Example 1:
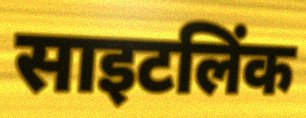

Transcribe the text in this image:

साइटलिंक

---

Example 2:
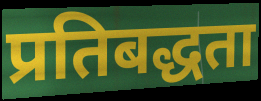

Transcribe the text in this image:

प्रतिबद्धता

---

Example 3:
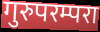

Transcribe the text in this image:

गुरुपरम्परा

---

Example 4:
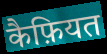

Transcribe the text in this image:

कैफ़ियत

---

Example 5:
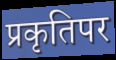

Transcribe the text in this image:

प्रकृतिपर